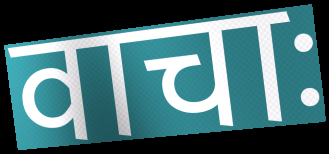
वाचाः